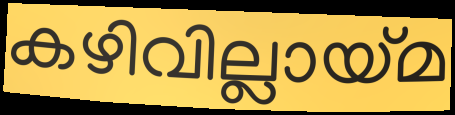
കഴിവില്ലായ്മ